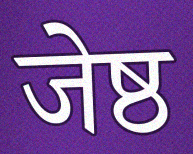
जेष्ठ